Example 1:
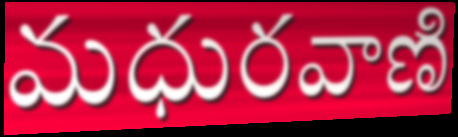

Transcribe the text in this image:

మధురవాణి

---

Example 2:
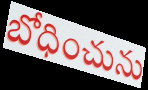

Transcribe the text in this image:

బోధించును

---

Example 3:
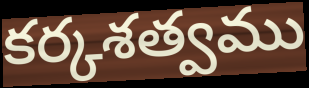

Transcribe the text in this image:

కర్కశత్వము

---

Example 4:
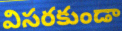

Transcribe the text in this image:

విసరకుండా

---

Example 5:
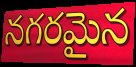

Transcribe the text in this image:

నగరమైన